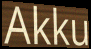
Akku